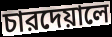
চারদেয়ালে